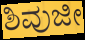
ಶಿವುಜೀ